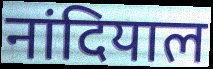
नांदियाल